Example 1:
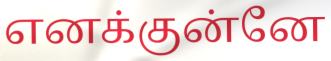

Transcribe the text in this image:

எனக்குன்னே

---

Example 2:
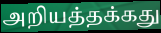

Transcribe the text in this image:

அறியத்தக்கது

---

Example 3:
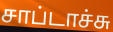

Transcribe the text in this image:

சாப்டாச்சு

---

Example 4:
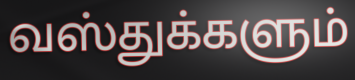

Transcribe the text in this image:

வஸ்துக்களும்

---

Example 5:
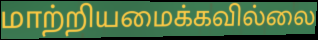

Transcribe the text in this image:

மாற்றியமைக்கவில்லை